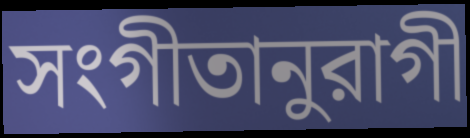
সংগীতানুরাগী